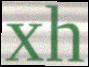
xh